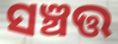
ସଞ୍ଚତ୍ତ